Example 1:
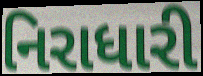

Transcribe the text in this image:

નિરાધારી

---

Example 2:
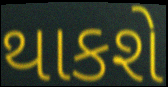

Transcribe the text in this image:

થાકશે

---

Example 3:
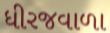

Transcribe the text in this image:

ધીરજવાળા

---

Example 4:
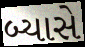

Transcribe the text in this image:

બ્યાસે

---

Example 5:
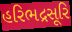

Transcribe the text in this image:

હરિભદ્રસૂરિ